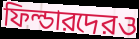
ফিল্ডারদেরও